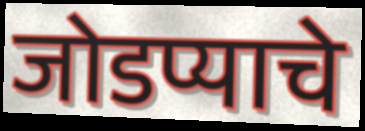
जोडप्याचे